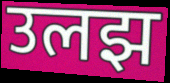
उलझ